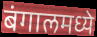
बंगालमध्ये